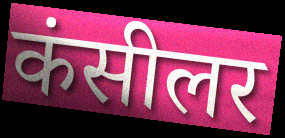
कंसीलर